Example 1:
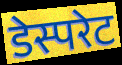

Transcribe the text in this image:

डेस्परेट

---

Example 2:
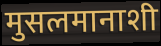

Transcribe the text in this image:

मुसलमानाशी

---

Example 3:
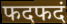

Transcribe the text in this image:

फदफदं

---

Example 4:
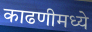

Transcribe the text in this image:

काढणीमध्ये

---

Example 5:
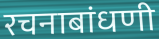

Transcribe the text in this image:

रचनाबांधणी